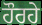
ਹੌਰਹੇ